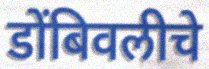
डोंबिवलीचे